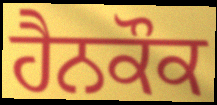
ਹੈਨਕੌਕ